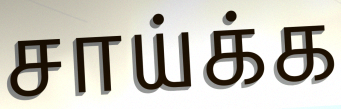
சாய்க்க